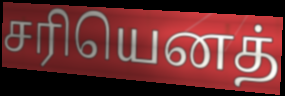
சரியெனத்